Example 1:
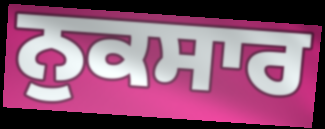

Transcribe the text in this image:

ਨੁਕਸਾਰ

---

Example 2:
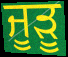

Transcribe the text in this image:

ਜੂੜੂ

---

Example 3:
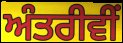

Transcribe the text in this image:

ਅੰਤਰੀਵੀਂ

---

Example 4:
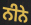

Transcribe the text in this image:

ਨੀਨੇ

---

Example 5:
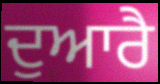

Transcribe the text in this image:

ਦੁਆਰੈ